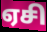
ஏசி